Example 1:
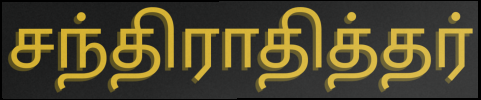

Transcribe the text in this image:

சந்திராதித்தர்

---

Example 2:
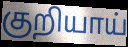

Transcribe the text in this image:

குறியாய்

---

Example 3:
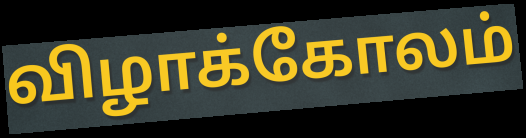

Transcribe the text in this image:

விழாக்கோலம்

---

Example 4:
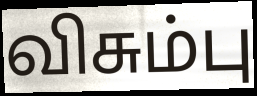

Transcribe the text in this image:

விசும்பு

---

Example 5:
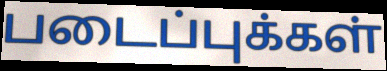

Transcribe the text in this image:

படைப்புக்கள்